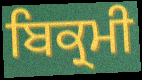
ਬਿਕ੍ਰਮੀ